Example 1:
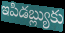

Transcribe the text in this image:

ఇపిడబ్ల్యుకు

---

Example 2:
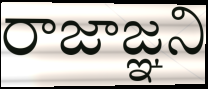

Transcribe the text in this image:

రాజాజ్ఞని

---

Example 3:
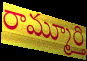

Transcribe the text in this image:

రామ్మూర్తి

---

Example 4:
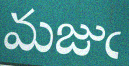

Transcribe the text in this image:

మజుఁ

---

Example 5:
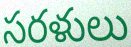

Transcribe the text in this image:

సరళులు